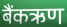
बैंकऋण